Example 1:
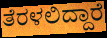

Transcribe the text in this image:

ತೆರಳಲಿದ್ದಾರೆ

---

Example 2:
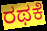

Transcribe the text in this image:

ರಥಕೆ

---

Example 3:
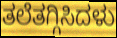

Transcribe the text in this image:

ತಲೆತಗ್ಗಿಸಿದಳು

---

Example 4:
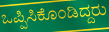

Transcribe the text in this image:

ಒಪ್ಪಿಸಿಕೊಂಡಿದ್ದರು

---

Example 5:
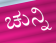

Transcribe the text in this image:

ಚುನ್ನಿ